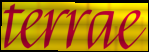
terrae